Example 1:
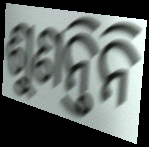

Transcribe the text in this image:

ଶୁଣନ୍ତିନି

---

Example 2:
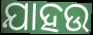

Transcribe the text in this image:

ଯାହଉ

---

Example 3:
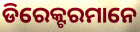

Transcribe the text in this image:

ଡିରେକ୍ଟରମାନେ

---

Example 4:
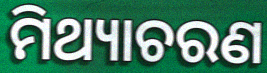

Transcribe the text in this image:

ମିଥ୍ୟାଚରଣ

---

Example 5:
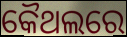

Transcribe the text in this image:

କୈଥଲରେ